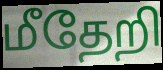
மீதேறி